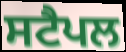
ਸਟੈਪਲ